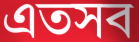
এতসব